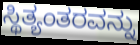
ಸ್ಥಿತ್ಯಂತರವನ್ನು